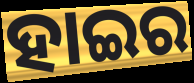
ହାଇର